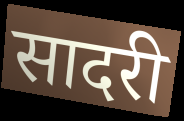
सादरी